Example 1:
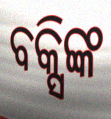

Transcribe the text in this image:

ବକ୍ସିଙ୍କ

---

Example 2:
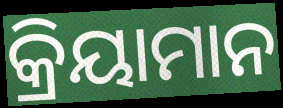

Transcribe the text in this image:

କ୍ରିୟାମାନ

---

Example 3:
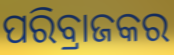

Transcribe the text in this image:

ପରିବ୍ରାଜକର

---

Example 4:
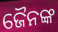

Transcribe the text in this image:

ଜୈନଙ୍କ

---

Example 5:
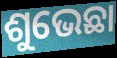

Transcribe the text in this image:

ଶୁଭେଛା